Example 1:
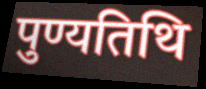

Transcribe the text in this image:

पुण्यतिथि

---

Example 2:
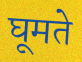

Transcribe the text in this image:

घूमते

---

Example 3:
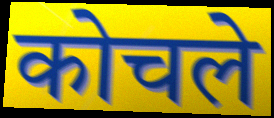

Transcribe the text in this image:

कोचले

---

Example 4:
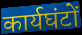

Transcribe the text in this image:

कार्यघंटों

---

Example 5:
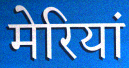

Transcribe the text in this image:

मेरियां